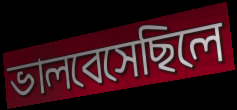
ভালবেসেছিলে